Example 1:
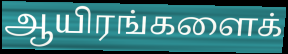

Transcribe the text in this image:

ஆயிரங்களைக்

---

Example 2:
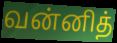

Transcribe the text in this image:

வன்னித்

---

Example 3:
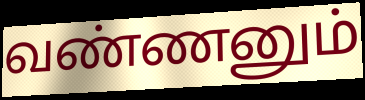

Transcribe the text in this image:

வண்ணனும்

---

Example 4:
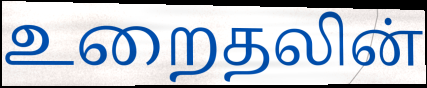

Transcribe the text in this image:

உறைதலின்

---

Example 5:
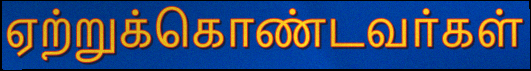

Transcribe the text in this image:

ஏற்றுக்கொண்டவர்கள்